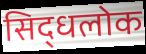
सिद्धलोक